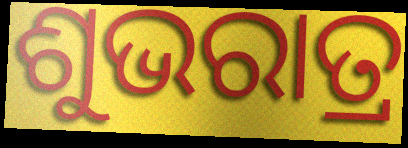
ଶୁଭରାତ୍ର